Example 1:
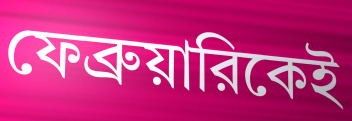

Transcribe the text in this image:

ফেব্রুয়ারিকেই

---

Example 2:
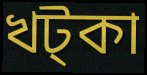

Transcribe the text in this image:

খট্‌কা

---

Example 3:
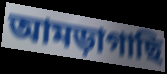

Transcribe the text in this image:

আমড়াগাছি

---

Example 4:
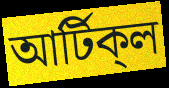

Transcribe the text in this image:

আর্টিক্‌ল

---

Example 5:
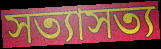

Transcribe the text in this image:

সত্যাসত্য